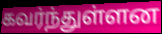
கவர்ந்துள்ளன